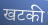
खटकी